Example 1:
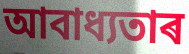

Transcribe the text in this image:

আবাধ্যতাৰ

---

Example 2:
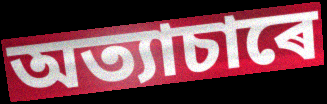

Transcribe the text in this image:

অত্যাচাৰে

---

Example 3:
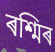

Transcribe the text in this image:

ৰশ্মিৰ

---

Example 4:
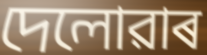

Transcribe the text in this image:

দেলোৱাৰ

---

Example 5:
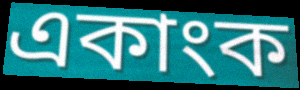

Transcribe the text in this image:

একাংক